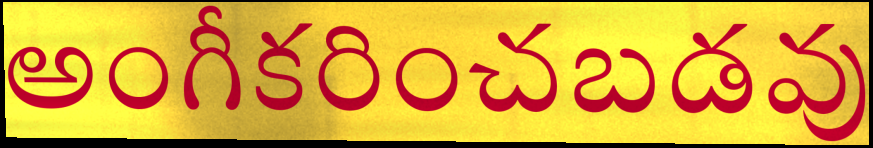
అంగీకరించబడవు